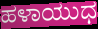
ಹಳಾಯುಧ